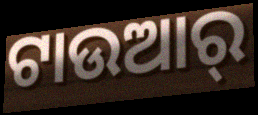
ଟାଉଆର୍